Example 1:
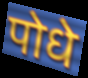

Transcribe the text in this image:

पोधे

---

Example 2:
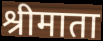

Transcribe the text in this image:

श्रीमाता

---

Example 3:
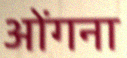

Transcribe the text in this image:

ओंगना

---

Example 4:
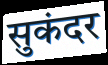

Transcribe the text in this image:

सुकंदर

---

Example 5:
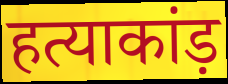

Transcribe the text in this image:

हत्याकांड़